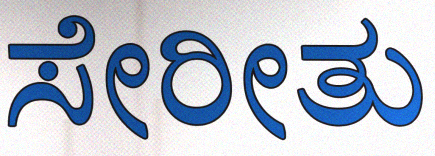
ಸೇರೀತು